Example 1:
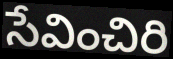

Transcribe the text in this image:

సేవించిరి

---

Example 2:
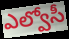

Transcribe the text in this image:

ఎల్వోసీ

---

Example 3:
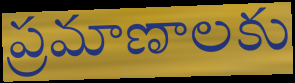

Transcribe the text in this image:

ప్రమాణాలకు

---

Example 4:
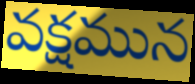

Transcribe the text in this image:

వక్షమున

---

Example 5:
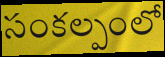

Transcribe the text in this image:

సంకల్పంలో